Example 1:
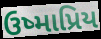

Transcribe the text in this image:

ઉષ્માપ્રિય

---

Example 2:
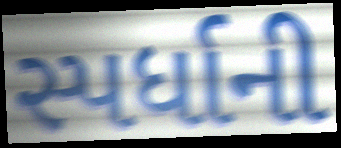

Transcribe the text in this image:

સ્પર્ધાની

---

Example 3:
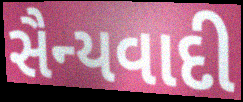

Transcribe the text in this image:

સૈન્યવાદી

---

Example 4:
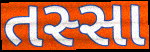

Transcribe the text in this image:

તસ્સા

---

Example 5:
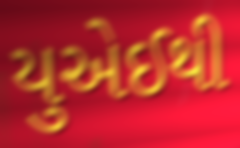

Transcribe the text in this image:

યુએઈથી